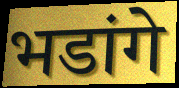
भडांगे